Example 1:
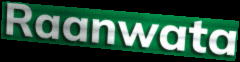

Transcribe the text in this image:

Raanwata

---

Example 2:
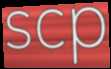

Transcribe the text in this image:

scp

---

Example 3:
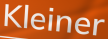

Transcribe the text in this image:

Kleiner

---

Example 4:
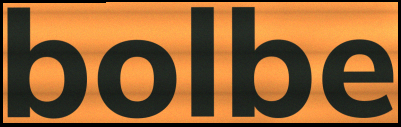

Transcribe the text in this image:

bolbe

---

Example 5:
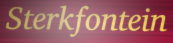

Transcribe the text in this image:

Sterkfontein